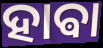
ହାଵା